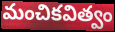
మంచికవిత్వం